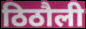
ठिठौली